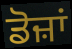
ਡੋਜ਼ਾਂ